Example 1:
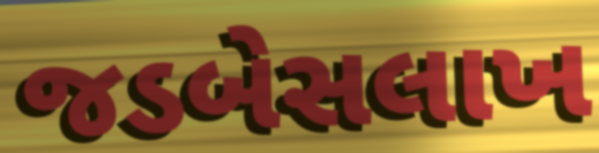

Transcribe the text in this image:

જડબેસલાખ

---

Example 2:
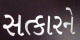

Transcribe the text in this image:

સત્કારને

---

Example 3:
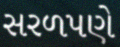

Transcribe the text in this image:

સરળપણે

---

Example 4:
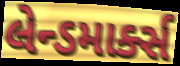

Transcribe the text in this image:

લેન્ડમાર્ક્સ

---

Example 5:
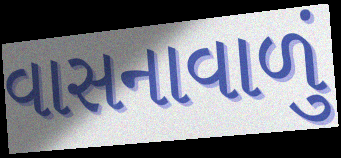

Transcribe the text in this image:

વાસનાવાળું